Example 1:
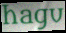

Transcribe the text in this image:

hagu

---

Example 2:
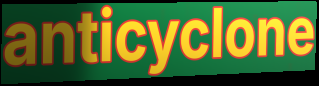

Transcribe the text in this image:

anticyclone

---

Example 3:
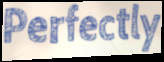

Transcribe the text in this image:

Perfectly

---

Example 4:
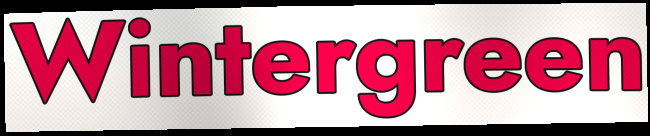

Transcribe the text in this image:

Wintergreen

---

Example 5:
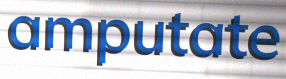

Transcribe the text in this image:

amputate